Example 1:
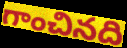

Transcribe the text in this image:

గాంచినది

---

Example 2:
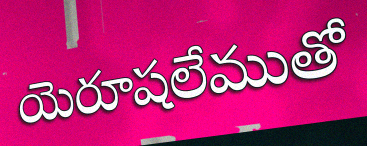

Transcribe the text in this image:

యెరూషలేముతో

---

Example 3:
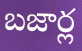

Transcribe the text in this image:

బజార్ల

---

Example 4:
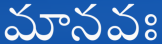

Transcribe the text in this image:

మానవః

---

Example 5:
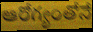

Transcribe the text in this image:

ఆరోగ్యంతోనే